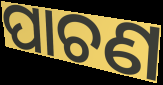
ପାଚଣ